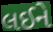
લઈને